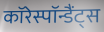
कॉरेस्पॉन्डैंट्स